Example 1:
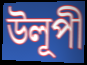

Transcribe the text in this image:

উলূপী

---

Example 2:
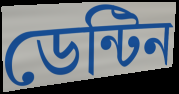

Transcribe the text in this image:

ডেন্টিন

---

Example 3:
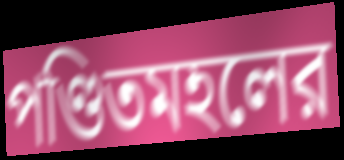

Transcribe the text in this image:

পণ্ডিতমহলের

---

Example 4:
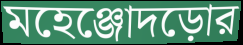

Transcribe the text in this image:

মহেঞ্জোদড়োর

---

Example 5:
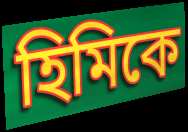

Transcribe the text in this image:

হিমিকে